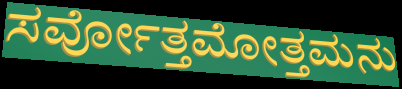
ಸರ್ವೋತ್ತಮೋತ್ತಮನು